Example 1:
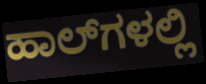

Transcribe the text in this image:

ಹಾಲ್‌ಗಳಲ್ಲಿ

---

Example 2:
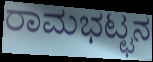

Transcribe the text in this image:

ರಾಮಭಟ್ಟನ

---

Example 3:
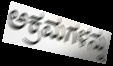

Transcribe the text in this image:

ಅಕ್ರಮಗಳನ್ನು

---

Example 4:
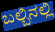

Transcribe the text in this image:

ಬಲ್ಬಿನಲ್ಲಿ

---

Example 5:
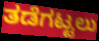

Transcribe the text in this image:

ತಡೆಗಟ್ಟಲು